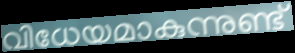
വിധേയമാകുന്നുണ്ട്